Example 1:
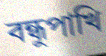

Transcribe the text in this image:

বন্ধুপাখি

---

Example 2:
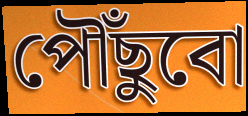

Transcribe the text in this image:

পৌঁছুবো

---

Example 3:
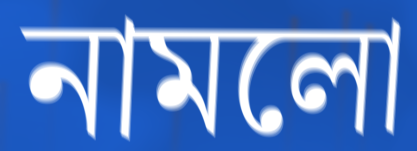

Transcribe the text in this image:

নামলো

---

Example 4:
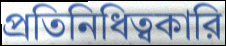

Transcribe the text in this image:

প্রতিনিধিত্বকারি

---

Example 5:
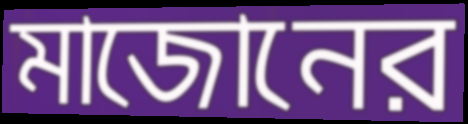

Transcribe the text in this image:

মাজোনের